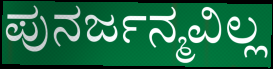
ಪುನರ್ಜನ್ಮವಿಲ್ಲ